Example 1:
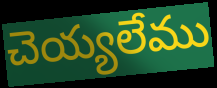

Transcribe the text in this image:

చెయ్యలేము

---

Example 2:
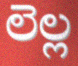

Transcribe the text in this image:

లెల్ల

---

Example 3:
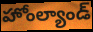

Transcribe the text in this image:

హోంల్యాండ్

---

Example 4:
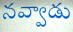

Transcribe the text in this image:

నవ్వాడు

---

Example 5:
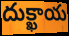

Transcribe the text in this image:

దుక్ఖాయ